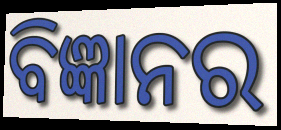
ବିଜ୍ଞାନର